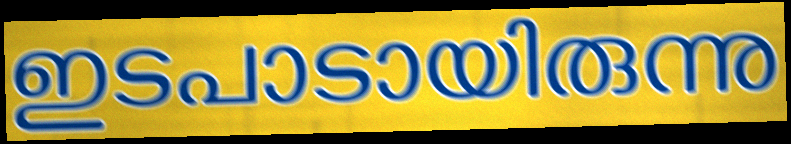
ഇടപാടായിരുന്നു